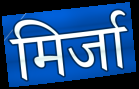
मिर्जा